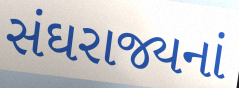
સંઘરાજ્યનાં